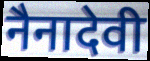
नैनादेवी